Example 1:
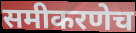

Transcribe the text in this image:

समीकरणेच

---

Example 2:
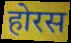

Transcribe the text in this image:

होरस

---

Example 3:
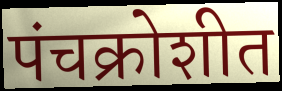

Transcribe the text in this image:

पंचक्रोशीत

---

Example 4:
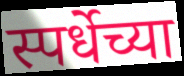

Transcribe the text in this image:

स्पर्धेच्या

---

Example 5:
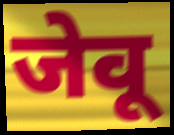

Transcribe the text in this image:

जेवू